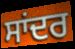
ਸਾਂਦਰ